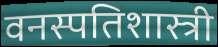
वनस्पतिशास्त्री